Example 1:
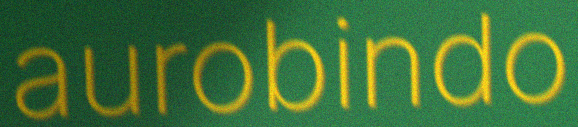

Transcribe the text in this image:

aurobindo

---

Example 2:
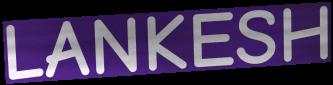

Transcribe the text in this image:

LANKESH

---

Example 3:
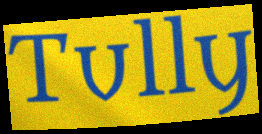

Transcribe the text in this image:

Tully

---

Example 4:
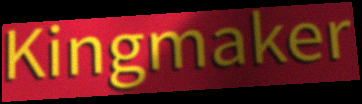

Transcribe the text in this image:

Kingmaker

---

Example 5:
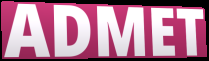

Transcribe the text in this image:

ADMET